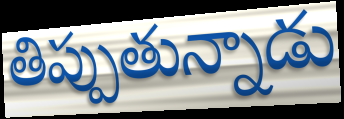
తిప్పుతున్నాడు